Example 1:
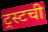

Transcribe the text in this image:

ट्रस्टची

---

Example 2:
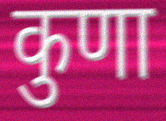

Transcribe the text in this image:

कुणा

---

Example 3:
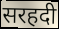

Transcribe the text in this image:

सरहदी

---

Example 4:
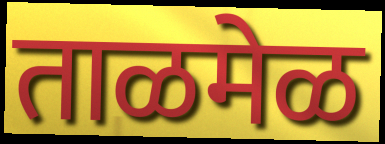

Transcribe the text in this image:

ताळमेळ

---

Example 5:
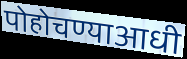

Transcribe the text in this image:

पोहोचण्याआधी